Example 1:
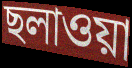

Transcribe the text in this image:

ছলাওয়া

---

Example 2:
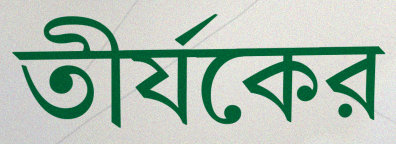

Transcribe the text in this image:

তীর্যকের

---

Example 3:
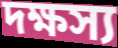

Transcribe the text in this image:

দক্ষস্য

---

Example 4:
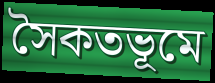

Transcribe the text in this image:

সৈকতভূমে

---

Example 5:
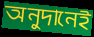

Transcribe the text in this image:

অনুদানেই